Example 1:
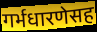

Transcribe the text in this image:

गर्भधारणेसह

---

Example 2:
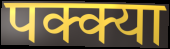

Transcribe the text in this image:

पक्क्या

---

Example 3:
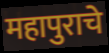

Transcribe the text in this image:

महापुराचे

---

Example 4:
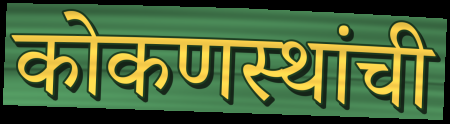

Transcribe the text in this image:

कोकणस्थांची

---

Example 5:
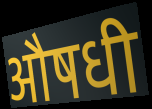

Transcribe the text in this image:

औषधी